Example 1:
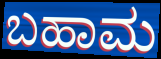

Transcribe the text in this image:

ಬಹಾಮ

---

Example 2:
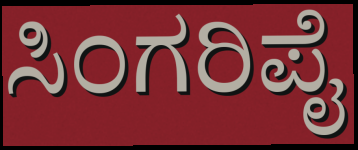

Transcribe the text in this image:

ಸಿಂಗರಿಪೈ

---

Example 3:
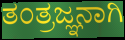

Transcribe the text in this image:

ತಂತ್ರಜ್ಞನಾಗಿ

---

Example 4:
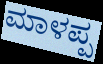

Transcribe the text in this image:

ಮಾಳಪ್ಪ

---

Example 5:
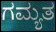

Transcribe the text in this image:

ಗಮ್ಯತ